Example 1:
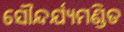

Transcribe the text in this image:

ସୌନ୍ଦର୍ଯ୍ୟମଣ୍ଡିତ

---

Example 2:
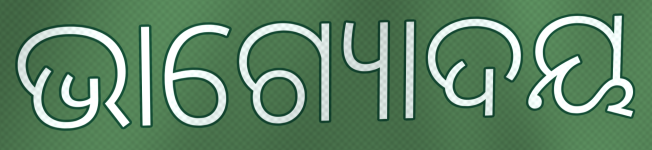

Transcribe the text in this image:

ଭାଗ୍ୟୋଦୟ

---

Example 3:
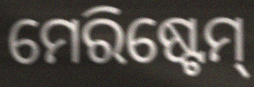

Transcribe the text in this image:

ମେରିଷ୍ଟେମ୍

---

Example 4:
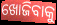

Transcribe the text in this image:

ଖୋଜିବାକୁ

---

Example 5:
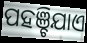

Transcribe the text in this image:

ପହଞ୍ଚିଯାଏ